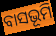
ବାସଭୂମି